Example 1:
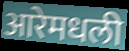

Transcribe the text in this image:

आरेमधली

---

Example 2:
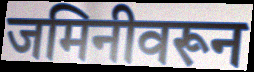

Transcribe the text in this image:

जमिनीवरून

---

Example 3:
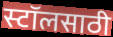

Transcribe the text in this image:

स्टॉलसाठी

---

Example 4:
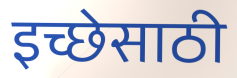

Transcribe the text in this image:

इच्छेसाठी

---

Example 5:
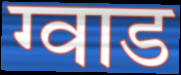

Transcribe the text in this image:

ग्वाड